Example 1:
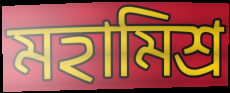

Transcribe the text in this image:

মহামিশ্র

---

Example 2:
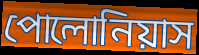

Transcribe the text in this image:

পোলোনিয়াস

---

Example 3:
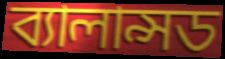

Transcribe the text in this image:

ব্যালান্সড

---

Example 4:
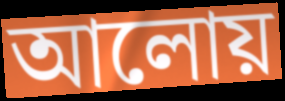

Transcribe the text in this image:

আলোয়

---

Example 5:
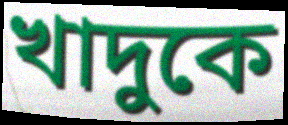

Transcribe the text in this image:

খাদুকে